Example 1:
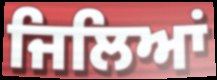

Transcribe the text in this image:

ਜਿਲਿਆਂ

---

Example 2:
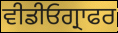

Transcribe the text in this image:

ਵੀਡੀਓਗ੍ਰਾਫਰ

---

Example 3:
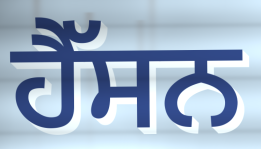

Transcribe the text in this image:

ਹੈੱਸਨ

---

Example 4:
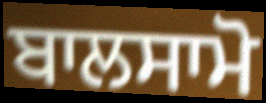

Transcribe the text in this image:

ਬਾਲਸਾਮੋ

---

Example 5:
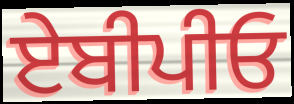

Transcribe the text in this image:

ਏਬੀਪੀਓ